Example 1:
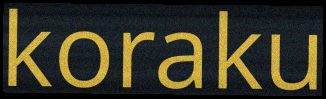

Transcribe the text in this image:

koraku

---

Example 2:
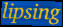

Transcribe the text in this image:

lipsing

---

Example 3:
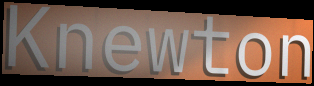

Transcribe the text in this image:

Knewton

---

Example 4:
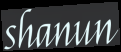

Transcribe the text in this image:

shanun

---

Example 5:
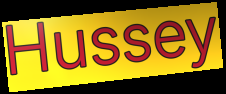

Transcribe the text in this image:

Hussey